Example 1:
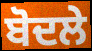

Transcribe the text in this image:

ਬੋਦਲੇ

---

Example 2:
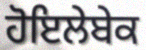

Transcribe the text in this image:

ਹੋਇਲੇਬੇਕ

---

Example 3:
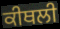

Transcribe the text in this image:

ਕੀਥਲੀ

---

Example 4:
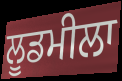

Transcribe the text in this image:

ਲੂਡਮੀਲਾ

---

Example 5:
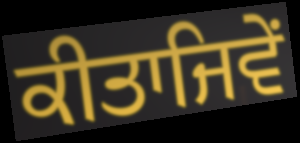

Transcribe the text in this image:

ਕੀਤਾਜਿਵੇਂ